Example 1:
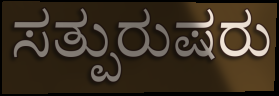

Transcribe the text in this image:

ಸತ್ಪುರುಷರು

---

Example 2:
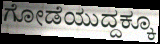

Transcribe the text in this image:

ಗೋಡೆಯುದ್ದಕ್ಕೂ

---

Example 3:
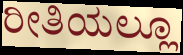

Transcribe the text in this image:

ರೀತಿಯಲ್ಲೂ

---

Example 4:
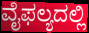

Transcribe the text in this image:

ವೈಫಲ್ಯದಲ್ಲಿ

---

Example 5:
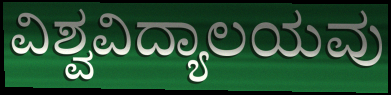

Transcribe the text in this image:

ವಿಶ್ವವಿದ್ಯಾಲಯವು